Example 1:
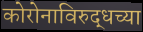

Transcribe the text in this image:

कोरोनाविरुद्धच्या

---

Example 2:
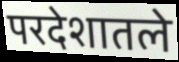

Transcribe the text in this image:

परदेशातले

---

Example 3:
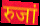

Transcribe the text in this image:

रुजां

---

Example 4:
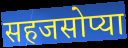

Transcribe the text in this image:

सहजसोप्या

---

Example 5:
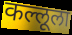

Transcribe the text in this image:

कल्लूला